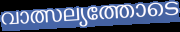
വാത്സല്യത്തോടെ